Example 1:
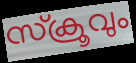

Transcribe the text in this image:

സ്ക്രൂവും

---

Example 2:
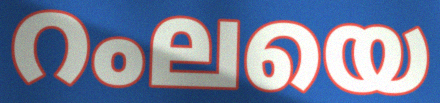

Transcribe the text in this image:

റംലയെ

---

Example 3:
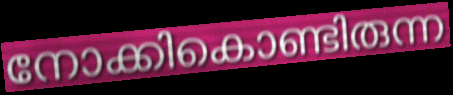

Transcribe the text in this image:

നോക്കികൊണ്ടിരുന്ന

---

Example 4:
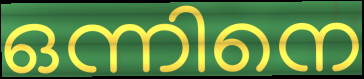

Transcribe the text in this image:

ഒന്നിനെ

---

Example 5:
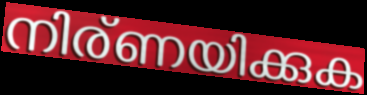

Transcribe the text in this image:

നിര്ണയിക്കുക